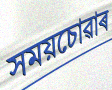
সময়চোৱাৰ